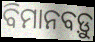
ବିମାନବଡ଼ୁ